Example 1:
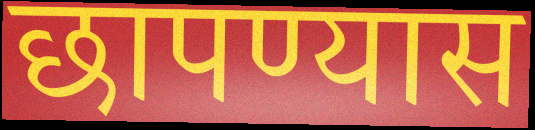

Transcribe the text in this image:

छापण्यास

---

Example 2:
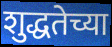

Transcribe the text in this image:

शुद्धतेच्या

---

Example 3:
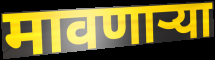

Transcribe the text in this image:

मावणाऱ्या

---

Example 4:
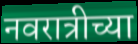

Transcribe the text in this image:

नवरात्रीच्या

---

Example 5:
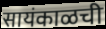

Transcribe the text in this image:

सायंकाळची